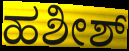
ಹಶೀಶ್